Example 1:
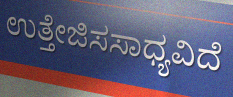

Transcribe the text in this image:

ಉತ್ತೇಜಿಸಸಾಧ್ಯವಿದೆ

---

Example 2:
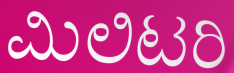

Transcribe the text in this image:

ಮಿಲಿಟರಿ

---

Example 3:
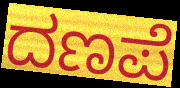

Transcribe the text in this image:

ದಣಪೆ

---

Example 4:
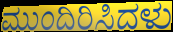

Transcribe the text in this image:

ಮುಂದಿರಿಸಿದಳು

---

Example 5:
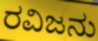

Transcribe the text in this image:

ರವಿಜನು